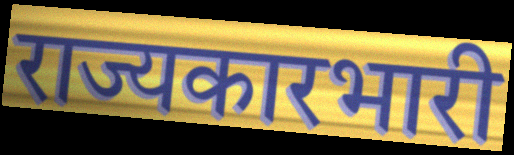
राज्यकारभारी